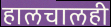
हालचालही